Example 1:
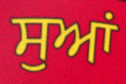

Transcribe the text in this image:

ਸੁਆਂ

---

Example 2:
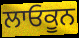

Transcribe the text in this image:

ਲਾਓਕੂਨ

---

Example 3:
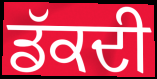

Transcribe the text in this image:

ਡੱਕਦੀ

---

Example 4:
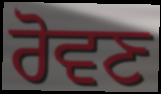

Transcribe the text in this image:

ਰੋਵਣ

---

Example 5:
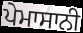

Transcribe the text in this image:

ਪੇਮਾਸਾਨੀ